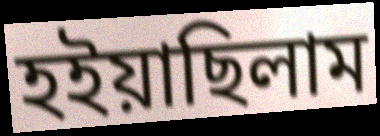
হইয়াছিলাম